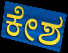
ಕೇಶ